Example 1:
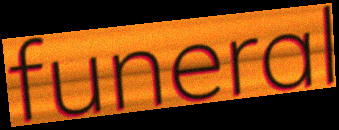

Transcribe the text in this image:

funeral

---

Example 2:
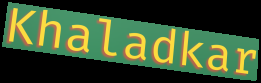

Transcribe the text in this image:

Khaladkar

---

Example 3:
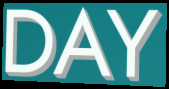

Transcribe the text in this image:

DAY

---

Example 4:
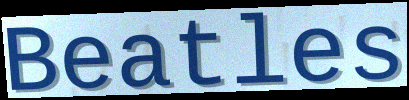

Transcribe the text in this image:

Beatles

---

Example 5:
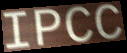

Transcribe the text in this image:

IPCC